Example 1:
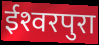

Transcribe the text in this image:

ईश्वरपुरा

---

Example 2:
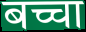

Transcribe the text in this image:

बच्‍चा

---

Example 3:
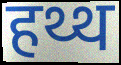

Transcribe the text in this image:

हथ्थ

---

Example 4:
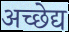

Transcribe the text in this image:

अच्छेद्य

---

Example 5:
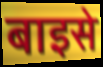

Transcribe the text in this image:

बाइसे